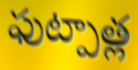
ఫుట్పాత్ల